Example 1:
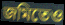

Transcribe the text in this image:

জমিতেও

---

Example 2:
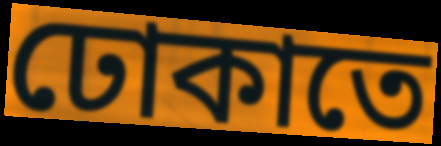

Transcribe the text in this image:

ঢোকাতে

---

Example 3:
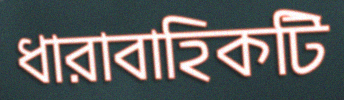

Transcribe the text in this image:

ধারাবাহিকটি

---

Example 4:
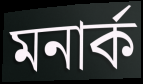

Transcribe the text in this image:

মনার্ক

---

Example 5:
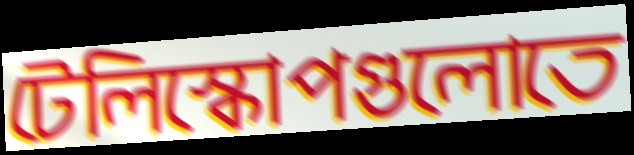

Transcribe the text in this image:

টেলিস্কোপগুলোতে